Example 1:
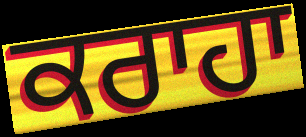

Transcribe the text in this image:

ਕਰਾਹਾ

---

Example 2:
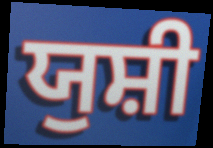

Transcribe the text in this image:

ਯੁਸ਼ੀ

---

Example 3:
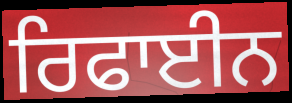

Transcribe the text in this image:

ਰਿਫਾਈਨ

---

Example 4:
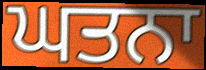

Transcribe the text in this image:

ਘਤਨਾ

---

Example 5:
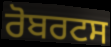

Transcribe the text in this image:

ਰੋਬਰਟਸ